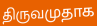
திருவமுதாக